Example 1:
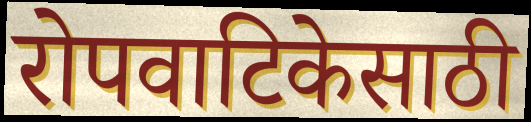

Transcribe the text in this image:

रोपवाटिकेसाठी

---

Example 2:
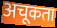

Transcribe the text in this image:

अचूकता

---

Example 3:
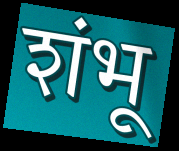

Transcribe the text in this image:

शंभू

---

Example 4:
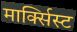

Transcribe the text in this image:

मार्क्सिस्ट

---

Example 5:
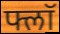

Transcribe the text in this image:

फ्लॉ